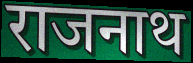
राजनाथ